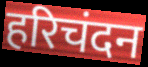
हरिचंदन